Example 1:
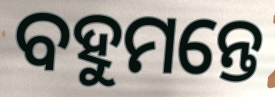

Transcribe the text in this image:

ବହୁମନ୍ତେ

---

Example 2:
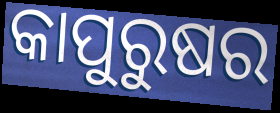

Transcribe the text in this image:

କାପୁରୁଷର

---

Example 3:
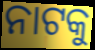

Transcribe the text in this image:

ନାଟକୁ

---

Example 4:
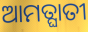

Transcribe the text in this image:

ଆମତ୍ଘାତୀ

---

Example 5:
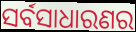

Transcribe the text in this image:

ସର୍ବସାଧାରଣର